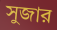
সুজার